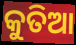
କୁତିଆ